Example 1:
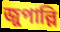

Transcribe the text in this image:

জুপাল্লি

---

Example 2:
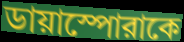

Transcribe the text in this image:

ডায়াস্পোরাকে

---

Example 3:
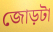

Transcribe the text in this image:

জোড়টা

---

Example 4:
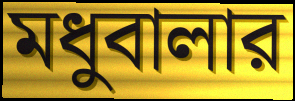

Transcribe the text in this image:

মধুবালার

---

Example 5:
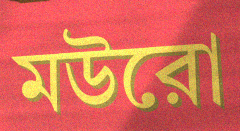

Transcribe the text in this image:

মউরো